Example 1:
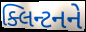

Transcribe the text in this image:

ક્લિન્ટનને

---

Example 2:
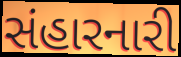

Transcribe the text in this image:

સંહારનારી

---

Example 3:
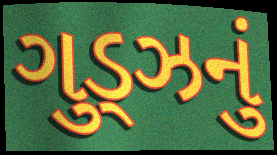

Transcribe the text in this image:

ગુડ્ઝનું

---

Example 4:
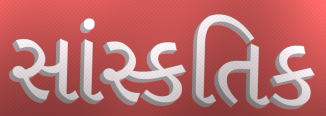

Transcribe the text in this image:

સાંસ્કતિક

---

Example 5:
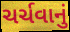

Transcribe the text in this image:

ચર્ચવાનું